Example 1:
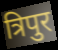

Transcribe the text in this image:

त्रिपुर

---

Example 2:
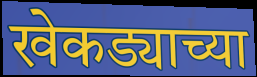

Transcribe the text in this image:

खेकड्याच्या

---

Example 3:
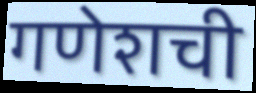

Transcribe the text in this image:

गणेशची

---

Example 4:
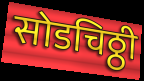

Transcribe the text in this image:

सोडचिठ्ठी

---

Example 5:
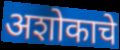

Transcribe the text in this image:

अशोकाचे